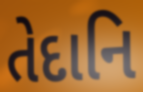
તેદાનિ